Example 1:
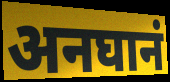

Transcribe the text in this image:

अनघानं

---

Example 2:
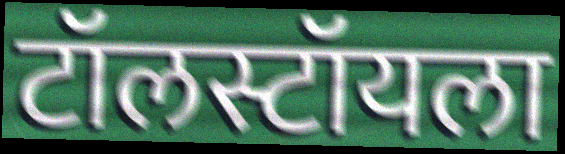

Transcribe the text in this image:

टॉलस्टॉयला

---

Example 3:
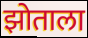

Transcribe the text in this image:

झोताला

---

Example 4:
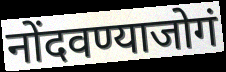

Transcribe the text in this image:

नोंदवण्याजोगं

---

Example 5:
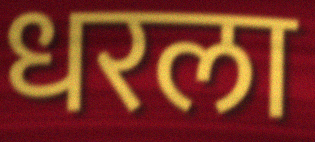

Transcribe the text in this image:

धरला